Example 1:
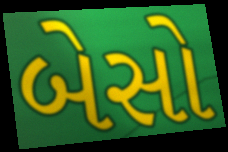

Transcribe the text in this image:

બેસો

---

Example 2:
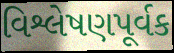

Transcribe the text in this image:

વિશ્લેષણપૂર્વક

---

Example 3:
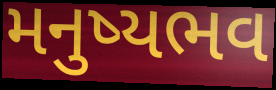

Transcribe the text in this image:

મનુષ્યભવ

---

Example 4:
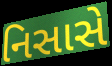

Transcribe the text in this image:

નિસાસે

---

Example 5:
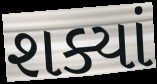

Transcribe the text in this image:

શક્યાં